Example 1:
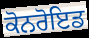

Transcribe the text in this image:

ਕੋਨਰੋਇਡ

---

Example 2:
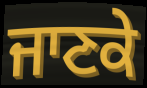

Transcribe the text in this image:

ਜਾਣਕੇ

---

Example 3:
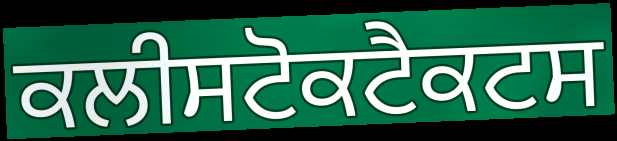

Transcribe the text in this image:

ਕਲੀਸਟੋਕਟੈਕਟਸ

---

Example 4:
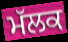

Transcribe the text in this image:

ਮੱਲਕ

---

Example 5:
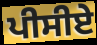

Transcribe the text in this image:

ਪੀਸੀਏ